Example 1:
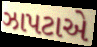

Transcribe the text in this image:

ઝાપટાએ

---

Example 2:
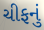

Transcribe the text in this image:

ચીફનું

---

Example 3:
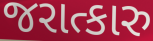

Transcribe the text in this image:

જરાત્કારુ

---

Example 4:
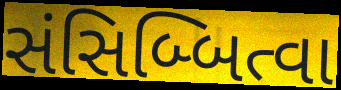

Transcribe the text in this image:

સંસિબ્બિત્વા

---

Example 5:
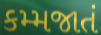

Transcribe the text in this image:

કમ્મજાતં